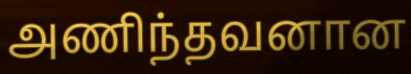
அணிந்தவனான